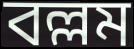
বল্লম